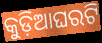
କୁଡ଼ିଆଘରଟି